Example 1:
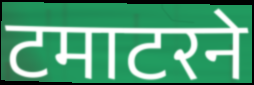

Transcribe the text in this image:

टमाटरने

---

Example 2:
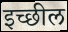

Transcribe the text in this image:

इच्छील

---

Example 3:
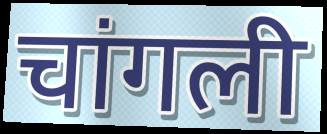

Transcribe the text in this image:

चांगली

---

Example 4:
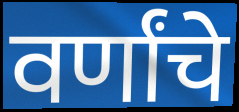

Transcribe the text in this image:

वर्णांचे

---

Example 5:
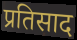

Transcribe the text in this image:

प्रतिसाद